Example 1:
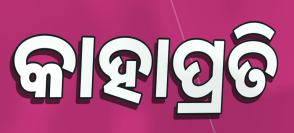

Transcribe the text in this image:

କାହାପ୍ରତି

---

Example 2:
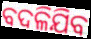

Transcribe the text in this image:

ବଦଳିଯିବ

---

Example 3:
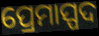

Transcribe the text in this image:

ପ୍ରେମାସ୍ପଦ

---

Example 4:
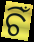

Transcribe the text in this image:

ଚିଁ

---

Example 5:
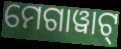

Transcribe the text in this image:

ମେଗାୱାଟ୍